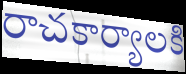
రాచకార్యాలకి